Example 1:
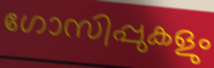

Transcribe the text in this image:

ഗോസിപ്പുകളും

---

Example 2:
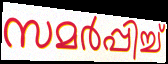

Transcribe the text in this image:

സമർപ്പിച്ച്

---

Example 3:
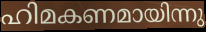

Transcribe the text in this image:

ഹിമകണമായിന്നു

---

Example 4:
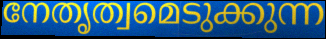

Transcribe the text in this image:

നേതൃത്വമെടുക്കുന്ന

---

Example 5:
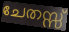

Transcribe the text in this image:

ചേതസ്സ്